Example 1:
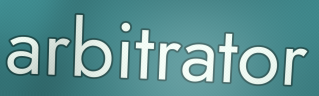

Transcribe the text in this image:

arbitrator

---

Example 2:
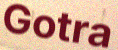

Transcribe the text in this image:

Gotra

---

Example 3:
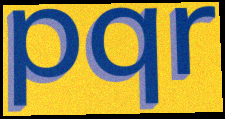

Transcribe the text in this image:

pqr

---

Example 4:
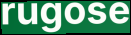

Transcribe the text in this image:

rugose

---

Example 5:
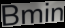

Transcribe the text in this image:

Bmin